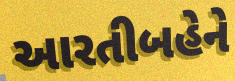
આરતીબહેને